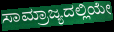
ಸಾಮ್ರಾಜ್ಯದಲ್ಲಿಯೇ